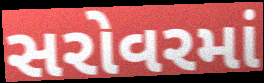
સરોવરમાં